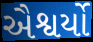
ઐશ્વર્યો